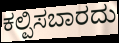
ಕಲ್ಪಿಸಬಾರದು